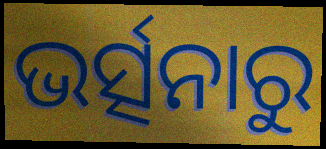
ଭର୍ତ୍ସନାରୁ